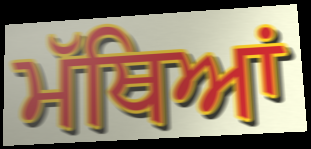
ਮੱਥਿਆਂ